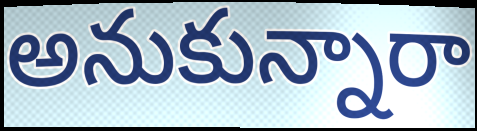
అనుకున్నారా